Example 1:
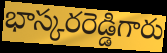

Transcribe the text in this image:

భాస్కరరెడ్డిగారు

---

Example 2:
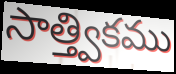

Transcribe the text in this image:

సాత్త్వికము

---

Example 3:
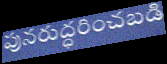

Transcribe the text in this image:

పునరుద్ధరించబడి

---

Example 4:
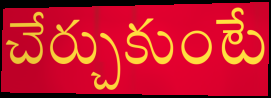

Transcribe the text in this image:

చేర్చుకుంటే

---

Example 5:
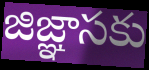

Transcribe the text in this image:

జిజ్ఞాసకు